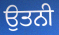
ਉਤਨੀ